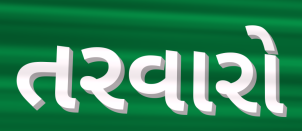
તરવારો